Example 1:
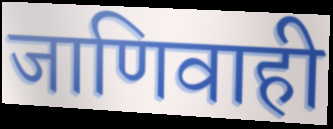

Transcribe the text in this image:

जाणिवाही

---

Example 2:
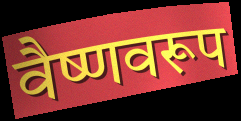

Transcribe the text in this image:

वैष्णवरूप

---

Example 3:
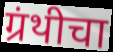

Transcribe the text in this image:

ग्रंथीचा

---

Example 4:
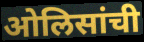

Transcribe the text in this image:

ओलिसांची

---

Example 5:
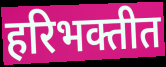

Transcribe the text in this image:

हरिभक्तीत